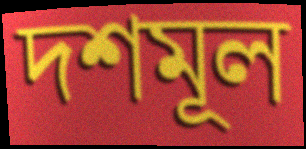
দশমূল